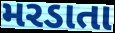
મરડાતા